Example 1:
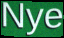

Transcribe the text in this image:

Nye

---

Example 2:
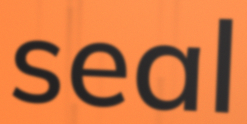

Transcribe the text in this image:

seal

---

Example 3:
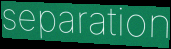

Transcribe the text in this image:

separation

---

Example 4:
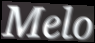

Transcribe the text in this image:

Melo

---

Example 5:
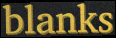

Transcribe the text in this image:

blanks